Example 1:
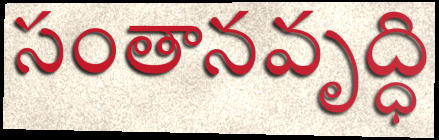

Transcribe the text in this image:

సంతానవృద్ధి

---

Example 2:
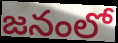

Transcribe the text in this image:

జనంలో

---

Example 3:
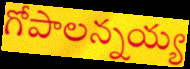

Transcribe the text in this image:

గోపాలన్నయ్య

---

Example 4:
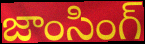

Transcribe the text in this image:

జాంసింగ్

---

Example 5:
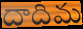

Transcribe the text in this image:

దాదిమ